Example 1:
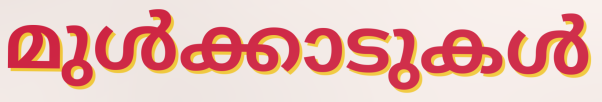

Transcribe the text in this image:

മുൾക്കാടുകൾ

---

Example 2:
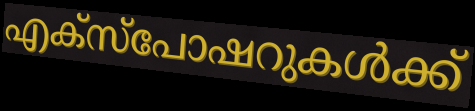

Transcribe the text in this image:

എക്സ്പോഷറുകൾക്ക്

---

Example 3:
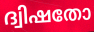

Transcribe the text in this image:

ദ്വിഷതോ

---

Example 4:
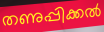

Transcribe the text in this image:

തണുപ്പിക്കൽ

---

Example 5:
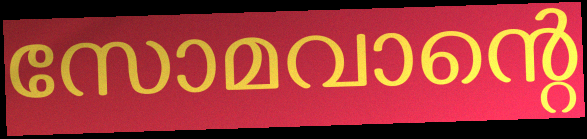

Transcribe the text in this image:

സോമവാന്റെ